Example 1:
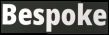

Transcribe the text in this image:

Bespoke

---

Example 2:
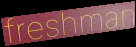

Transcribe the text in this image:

freshman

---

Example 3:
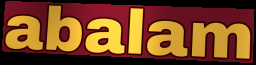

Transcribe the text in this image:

abalam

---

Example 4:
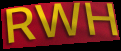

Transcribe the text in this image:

RWH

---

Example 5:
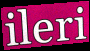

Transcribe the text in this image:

ileri